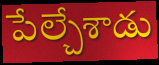
పేల్చేశాడు